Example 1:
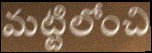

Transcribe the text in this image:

మట్టిలోంచి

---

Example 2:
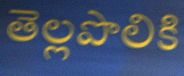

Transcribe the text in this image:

తెల్లపొలికి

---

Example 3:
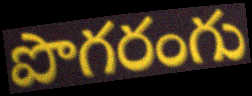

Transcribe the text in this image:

పొగరంగు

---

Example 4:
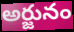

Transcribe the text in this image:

అర్జునం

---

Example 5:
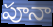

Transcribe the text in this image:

పూనా